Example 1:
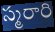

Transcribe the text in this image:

స్మరారి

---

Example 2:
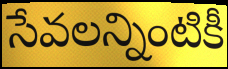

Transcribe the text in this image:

సేవలన్నింటికీ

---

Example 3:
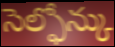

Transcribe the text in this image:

సెల్ఫోన్కు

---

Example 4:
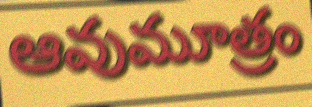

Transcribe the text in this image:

ఆవుమూత్రం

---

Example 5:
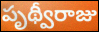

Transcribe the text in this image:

పృథ్వీరాజు